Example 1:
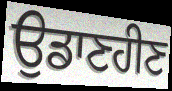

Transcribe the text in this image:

ਉਡਾਣਹੀਣ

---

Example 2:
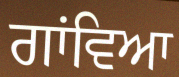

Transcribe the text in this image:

ਗਾਂਵਿਆ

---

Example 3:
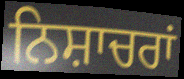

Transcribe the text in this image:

ਨਿਸ਼ਾਚਰਾਂ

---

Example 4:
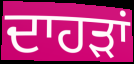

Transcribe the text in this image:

ਦਾਹੜਾਂ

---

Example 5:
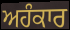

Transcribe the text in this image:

ਅਹੰਕਾਰ